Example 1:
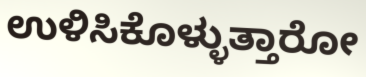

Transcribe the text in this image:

ಉಳಿಸಿಕೊಳ್ಳುತ್ತಾರೋ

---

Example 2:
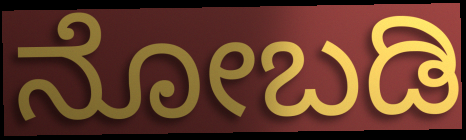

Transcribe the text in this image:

ನೋಬಡಿ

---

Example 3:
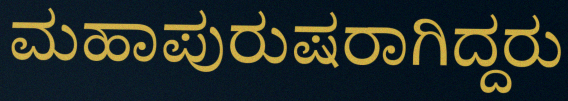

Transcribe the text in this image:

ಮಹಾಪುರುಷರಾಗಿದ್ದರು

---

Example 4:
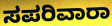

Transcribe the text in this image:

ಸಪರಿವಾರಾ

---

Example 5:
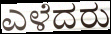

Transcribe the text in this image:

ಎಳೆದರು